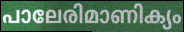
പാലേരിമാണിക്യം